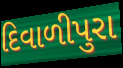
દિવાળીપુરા